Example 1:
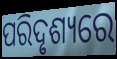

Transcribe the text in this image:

ପରିଦୃଶ୍ୟରେ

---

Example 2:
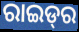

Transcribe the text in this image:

ରାଇଡ୍‌ର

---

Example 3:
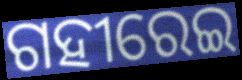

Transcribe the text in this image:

ଗହୀରେଇ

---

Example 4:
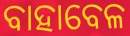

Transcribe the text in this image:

ବାହାବେଳ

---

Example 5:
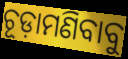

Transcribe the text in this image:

ଚୂଡ଼ାମଣିବାବୁ